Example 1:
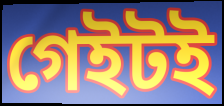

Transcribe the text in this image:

গেইটই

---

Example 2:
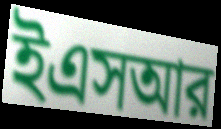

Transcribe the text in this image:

ইএসআর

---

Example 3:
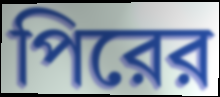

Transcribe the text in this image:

পিরের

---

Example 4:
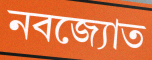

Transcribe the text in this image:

নবজ্যোত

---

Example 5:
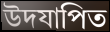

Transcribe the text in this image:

উদযাপিত